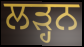
ਲੜ੍ਹਨ